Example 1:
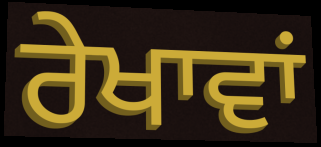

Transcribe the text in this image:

ਰੇਖਾਵਾਂ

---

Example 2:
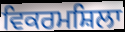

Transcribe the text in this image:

ਵਿਕਰਮਸ਼ਿਲਾ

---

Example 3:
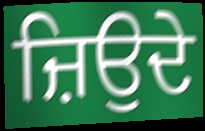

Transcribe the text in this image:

ਜ਼ਿਉਦੇ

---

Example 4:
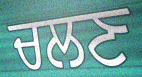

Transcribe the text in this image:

ਚਲਣ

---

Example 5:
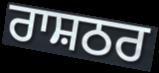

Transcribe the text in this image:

ਰਾਸ਼ਠਰ